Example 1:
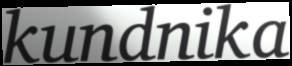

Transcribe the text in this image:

kundnika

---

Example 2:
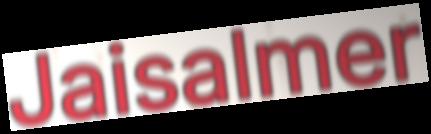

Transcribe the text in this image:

Jaisalmer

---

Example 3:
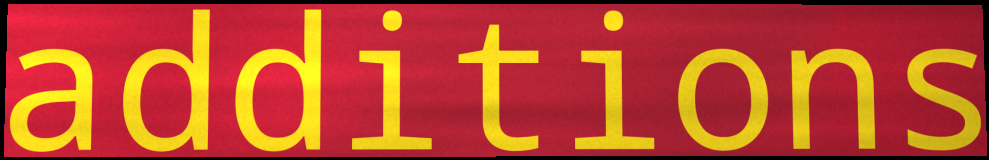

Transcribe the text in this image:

additions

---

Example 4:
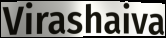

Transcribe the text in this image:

Virashaiva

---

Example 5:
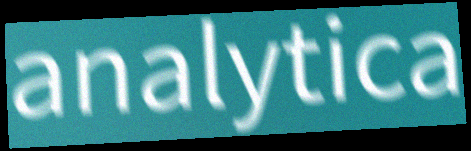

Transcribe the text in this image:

analytica